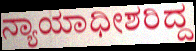
ನ್ಯಾಯಾಧೀಶರಿದ್ದ